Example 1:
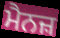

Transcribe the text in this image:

ਮੈਨਜ਼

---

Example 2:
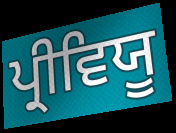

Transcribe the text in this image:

ਪ੍ਰੀਵਿਯੂ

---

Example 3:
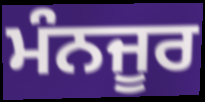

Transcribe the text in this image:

ਮੰਨਜੂਰ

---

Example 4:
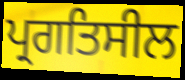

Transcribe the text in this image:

ਪ੍ਰਗਤਿਸੀਲ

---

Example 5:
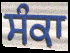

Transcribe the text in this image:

ਸੰਕਾ